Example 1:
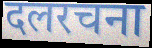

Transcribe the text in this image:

दलरचना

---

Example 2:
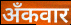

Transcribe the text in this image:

अँकवार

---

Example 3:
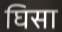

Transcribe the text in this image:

घिसा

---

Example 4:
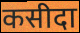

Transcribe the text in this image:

कसीदा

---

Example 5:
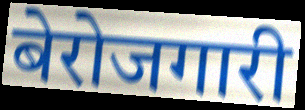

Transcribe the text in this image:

बेरोजगारी